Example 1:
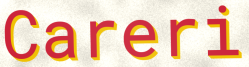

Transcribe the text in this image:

Careri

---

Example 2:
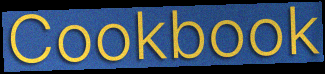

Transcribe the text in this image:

Cookbook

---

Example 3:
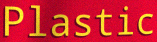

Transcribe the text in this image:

Plastic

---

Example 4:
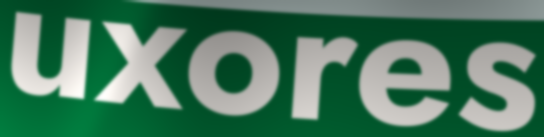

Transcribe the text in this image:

uxores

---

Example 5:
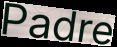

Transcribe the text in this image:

Padre